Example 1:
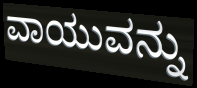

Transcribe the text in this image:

ವಾಯುವನ್ನು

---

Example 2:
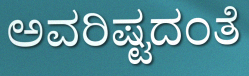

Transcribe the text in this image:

ಅವರಿಷ್ಟದಂತೆ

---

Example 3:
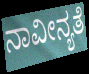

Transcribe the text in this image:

ನಾವೀನ್ಯತೆ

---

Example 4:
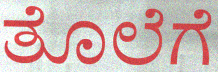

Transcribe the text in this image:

ತೊಲೆಗೆ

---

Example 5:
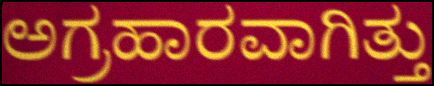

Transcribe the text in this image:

ಅಗ್ರಹಾರವಾಗಿತ್ತು